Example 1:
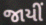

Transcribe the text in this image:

જાયીં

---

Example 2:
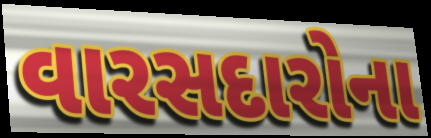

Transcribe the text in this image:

વારસદારોના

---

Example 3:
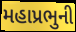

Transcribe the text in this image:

મહાપ્રભુની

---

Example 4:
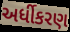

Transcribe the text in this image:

અર્ધીકરણ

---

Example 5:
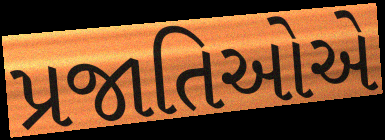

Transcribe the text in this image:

પ્રજાતિઓએ